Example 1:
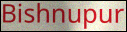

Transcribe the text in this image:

Bishnupur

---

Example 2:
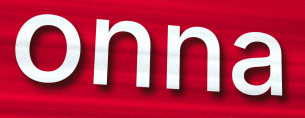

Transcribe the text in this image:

onna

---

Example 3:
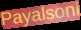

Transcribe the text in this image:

Payalsoni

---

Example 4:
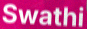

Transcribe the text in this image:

Swathi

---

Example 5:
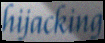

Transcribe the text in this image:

hijacking